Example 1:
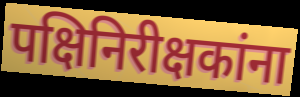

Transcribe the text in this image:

पक्षिनिरीक्षकांना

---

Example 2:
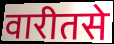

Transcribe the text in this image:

वारीतसे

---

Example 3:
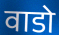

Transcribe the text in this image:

वाडो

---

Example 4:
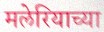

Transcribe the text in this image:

मलेरियाच्या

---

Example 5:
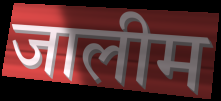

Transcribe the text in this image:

जालीम